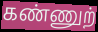
கண்ணுற்